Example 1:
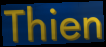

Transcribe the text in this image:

Thien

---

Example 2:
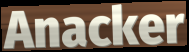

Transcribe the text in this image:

Anacker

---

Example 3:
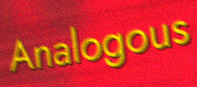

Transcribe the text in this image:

Analogous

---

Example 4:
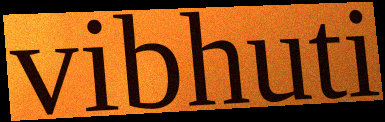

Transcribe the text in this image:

vibhuti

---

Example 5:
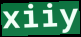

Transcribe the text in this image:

xiiy